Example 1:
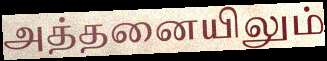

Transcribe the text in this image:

அத்தனையிலும்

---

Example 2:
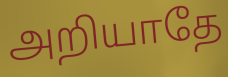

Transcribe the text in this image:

அறியாதே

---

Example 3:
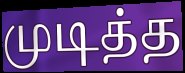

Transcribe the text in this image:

முடித்த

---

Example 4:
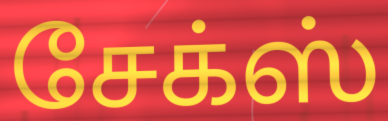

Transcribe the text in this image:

சேக்ஸ்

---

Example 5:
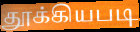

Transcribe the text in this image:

தூக்கியபடி